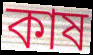
কাষ